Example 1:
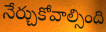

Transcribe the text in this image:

నేర్చుకోవాల్సింది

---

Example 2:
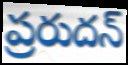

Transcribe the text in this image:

ప్రరుదన్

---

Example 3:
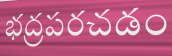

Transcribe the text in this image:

భద్రపరచడం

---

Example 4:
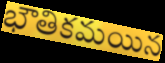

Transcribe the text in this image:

భౌతికమయిన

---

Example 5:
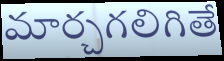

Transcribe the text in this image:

మార్చగలిగితే